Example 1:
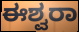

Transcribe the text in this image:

ಈಶ್ವರಾ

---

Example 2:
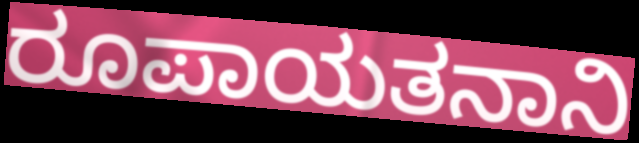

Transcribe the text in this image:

ರೂಪಾಯತನಾನಿ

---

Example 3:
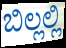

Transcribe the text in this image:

ಬಿಲ್ಲಲ್ಲಿ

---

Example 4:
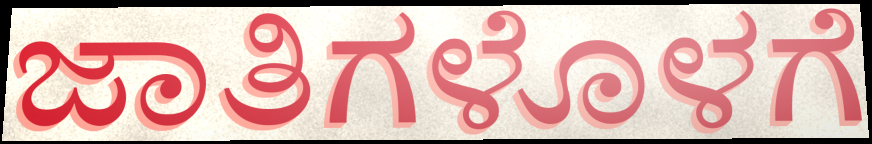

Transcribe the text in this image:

ಜಾತಿಗಳೊಳಗೆ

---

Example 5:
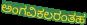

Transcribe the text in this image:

ಅಂಗವಿಕಲರಂತಹ